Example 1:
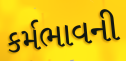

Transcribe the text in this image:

કર્મભાવની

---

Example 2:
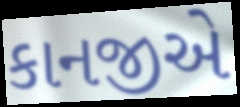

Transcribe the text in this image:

કાનજીએ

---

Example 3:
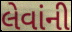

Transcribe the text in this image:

લેવાંની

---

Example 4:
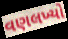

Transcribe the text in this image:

વણલખ્યો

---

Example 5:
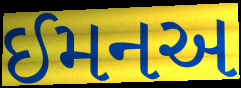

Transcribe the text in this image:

ઈમનઅ